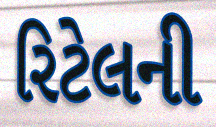
રિટેલની